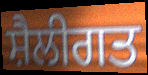
ਸ਼ੈਲੀਗਤ